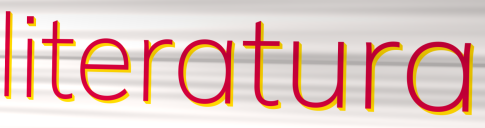
literatura